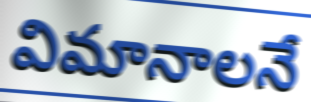
విమానాలనే